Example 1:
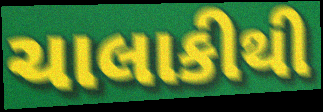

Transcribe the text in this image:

ચાલાકીથી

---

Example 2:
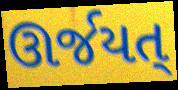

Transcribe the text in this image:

ઊર્જયત્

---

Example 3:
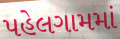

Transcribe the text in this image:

પહેલગામમાં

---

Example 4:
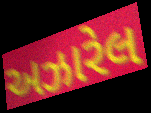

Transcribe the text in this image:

અઝારેલ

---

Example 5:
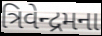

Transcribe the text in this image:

ત્રિવેન્દ્રમના